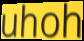
uhoh